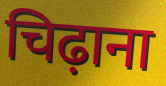
चिढ़ाना